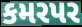
કમરપર